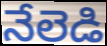
నేలెడి